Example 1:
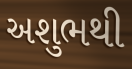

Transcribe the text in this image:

અશુભથી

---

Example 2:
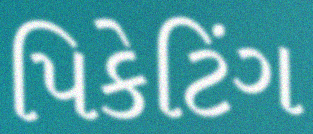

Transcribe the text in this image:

પિકેટિંગ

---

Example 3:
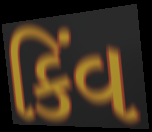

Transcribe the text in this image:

કિંવ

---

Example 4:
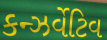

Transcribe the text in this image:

કન્ઝર્વેટિવ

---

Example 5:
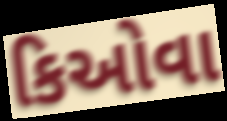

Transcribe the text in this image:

કિઓવા